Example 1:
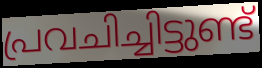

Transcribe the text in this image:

പ്രവചിച്ചിട്ടുണ്ട്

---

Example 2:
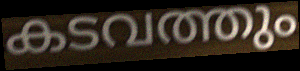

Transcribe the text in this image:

കടവത്തും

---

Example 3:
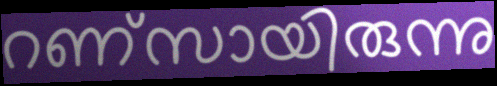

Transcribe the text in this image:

റണ്സായിരുന്നു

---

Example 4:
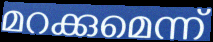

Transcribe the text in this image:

മറക്കുമെന്ന്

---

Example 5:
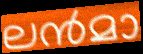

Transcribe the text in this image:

ലൻമാ